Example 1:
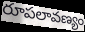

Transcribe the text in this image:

రూపలావణ్యం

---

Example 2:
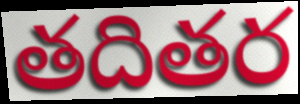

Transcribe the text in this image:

తదితర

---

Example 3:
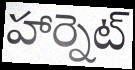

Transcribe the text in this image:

హార్నెట్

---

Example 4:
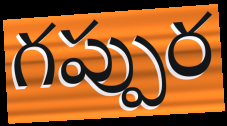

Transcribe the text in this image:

గప్పుర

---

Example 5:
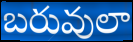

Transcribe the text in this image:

బరువులా